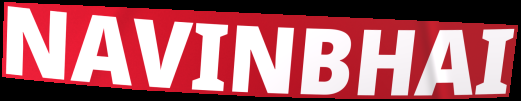
NAVINBHAI